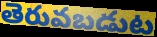
తెరువబడుట